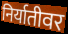
निर्यातीवर